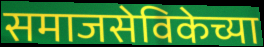
समाजसेविकेच्या